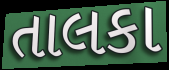
તાલકા